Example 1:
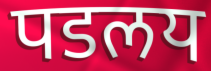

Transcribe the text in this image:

पडलय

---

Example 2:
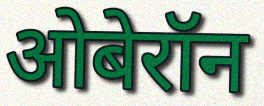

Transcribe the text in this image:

ओबेरॉन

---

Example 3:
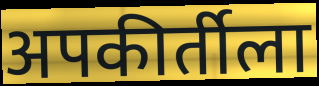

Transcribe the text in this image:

अपकीर्तीला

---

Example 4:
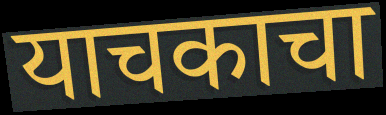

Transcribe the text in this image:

याचकाचा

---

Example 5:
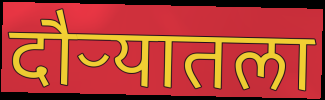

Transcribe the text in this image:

दौऱ्यातला